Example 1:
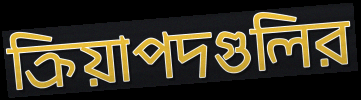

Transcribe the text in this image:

ক্রিয়াপদগুলির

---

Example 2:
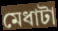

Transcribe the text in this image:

মেধাটা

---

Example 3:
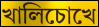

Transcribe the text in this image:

খালিচোখে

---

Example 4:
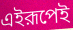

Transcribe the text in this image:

এইরূপেই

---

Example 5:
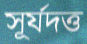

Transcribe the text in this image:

সূর্যদত্ত